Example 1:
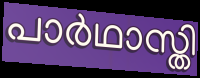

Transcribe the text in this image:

പാർഥാസ്തി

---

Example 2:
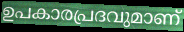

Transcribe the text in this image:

ഉപകാരപ്രദവുമാണ്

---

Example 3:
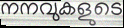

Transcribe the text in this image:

നനവുകളുടെ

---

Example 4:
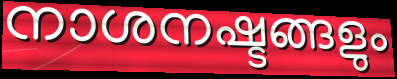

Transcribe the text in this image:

നാശനഷ്ടങ്ങളും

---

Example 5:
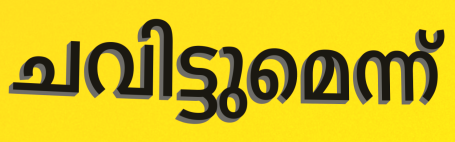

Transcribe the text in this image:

ചവിട്ടുമെന്ന്